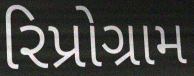
રિપ્રોગ્રામ